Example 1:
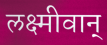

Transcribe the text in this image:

लक्ष्मीवान्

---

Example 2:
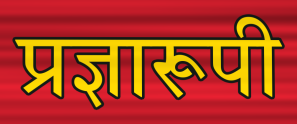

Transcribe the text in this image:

प्रज्ञारूपी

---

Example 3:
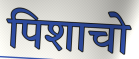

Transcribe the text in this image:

पिशाचो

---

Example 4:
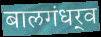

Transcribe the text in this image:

बालगंधर्व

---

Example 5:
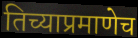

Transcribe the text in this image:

तिच्याप्रमाणेच